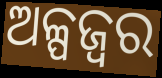
ଅଳ୍ପଜ୍ଵର